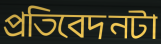
প্রতিবেদনটা